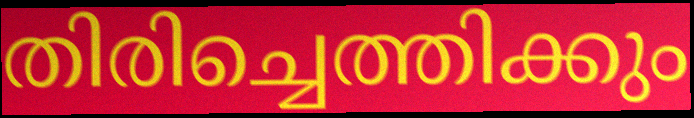
തിരിച്ചെത്തിക്കും